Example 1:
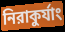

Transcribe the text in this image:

নিরাকুর্যাং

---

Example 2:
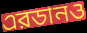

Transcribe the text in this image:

এরডানও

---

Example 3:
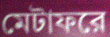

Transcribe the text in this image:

মেটাফরে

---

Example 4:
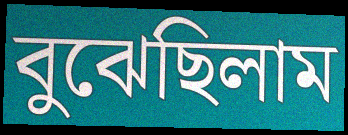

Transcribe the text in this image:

বুঝেছিলাম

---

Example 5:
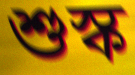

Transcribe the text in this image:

শুস্ক